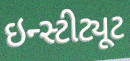
ઇન્સ્ટીટ્યૂટ